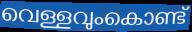
വെള്ളവുംകൊണ്ട്